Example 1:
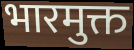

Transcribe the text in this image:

भारमुक्त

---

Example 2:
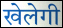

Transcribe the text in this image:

खेलेगी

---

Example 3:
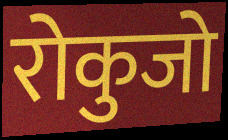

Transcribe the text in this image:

रोकुजो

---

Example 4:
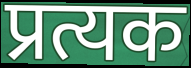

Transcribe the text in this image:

प्रत्यक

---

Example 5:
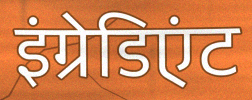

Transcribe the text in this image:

इंग्रेडिएंट